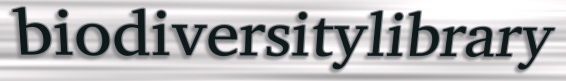
biodiversitylibrary